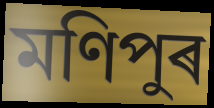
মণিপুৰ